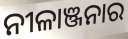
ନୀଳାଞ୍ଜନାର